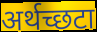
अर्थच्छटा